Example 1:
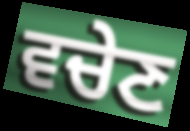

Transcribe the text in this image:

ਵਚੇਣ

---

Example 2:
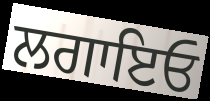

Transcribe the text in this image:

ਲਗਾਇਓ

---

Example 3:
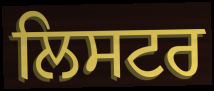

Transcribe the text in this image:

ਲਿਸਟਰ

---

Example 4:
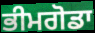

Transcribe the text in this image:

ਭੀਮਗੋਡਾ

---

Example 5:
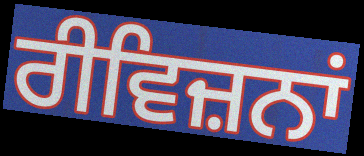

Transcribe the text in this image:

ਰੀਵਿਜ਼ਨਾਂ